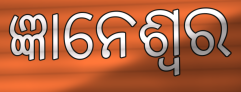
ଜ୍ଞାନେଶ୍ୱର